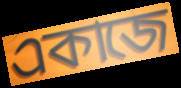
একাজে